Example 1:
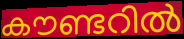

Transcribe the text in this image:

കൗണ്ടറിൽ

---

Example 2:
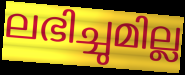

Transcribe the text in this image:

ലഭിച്ചുമില്ല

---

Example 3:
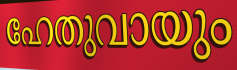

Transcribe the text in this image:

ഹേതുവായും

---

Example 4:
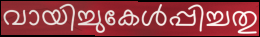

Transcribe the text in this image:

വായിച്ചുകേൾപ്പിച്ചതു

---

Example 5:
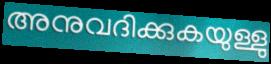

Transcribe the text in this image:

അനുവദിക്കുകയുള്ളു